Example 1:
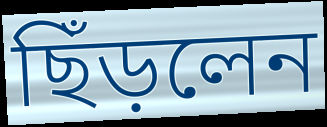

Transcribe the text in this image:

ছিঁড়লেন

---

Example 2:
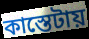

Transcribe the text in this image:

কাস্তেটায়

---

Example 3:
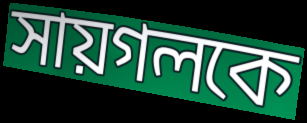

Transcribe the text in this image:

সায়গলকে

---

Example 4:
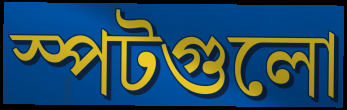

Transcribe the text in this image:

স্পটগুলো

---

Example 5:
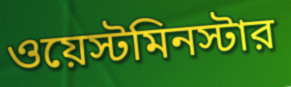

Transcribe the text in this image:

ওয়েস্টমিনস্টার